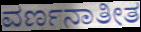
ವರ್ಣನಾತೀತ